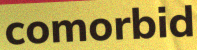
comorbid